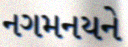
નગમનયને